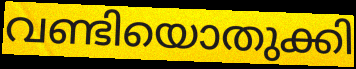
വണ്ടിയൊതുക്കി